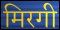
मिरगी